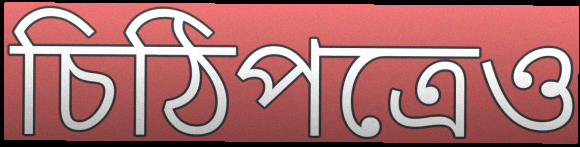
চিঠিপত্রেও